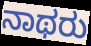
ನಾಥರು